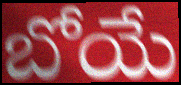
బోయే